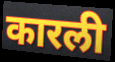
कारली